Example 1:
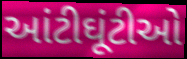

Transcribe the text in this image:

આંટીઘૂંટીઓ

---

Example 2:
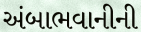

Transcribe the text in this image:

અંબાભવાનીની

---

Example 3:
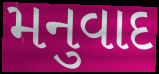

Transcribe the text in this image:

મનુવાદ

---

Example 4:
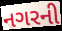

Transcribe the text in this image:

નગરની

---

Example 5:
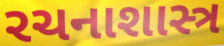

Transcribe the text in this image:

રચનાશાસ્ત્ર